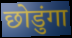
छोडुंगा